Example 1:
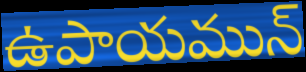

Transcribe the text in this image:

ఉపాయమున్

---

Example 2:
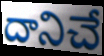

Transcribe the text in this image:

దానిచే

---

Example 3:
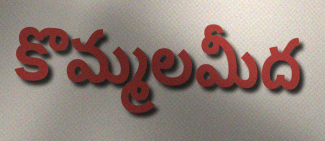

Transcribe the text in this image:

కొమ్మలమీద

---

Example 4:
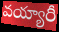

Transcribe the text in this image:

వయ్యారీ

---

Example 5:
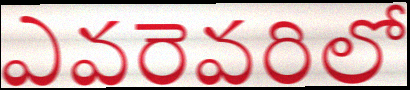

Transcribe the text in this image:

ఎవరెవరిలో